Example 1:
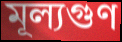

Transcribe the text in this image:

মূল্যগুণ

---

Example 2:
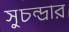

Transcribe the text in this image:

সুচন্দ্রার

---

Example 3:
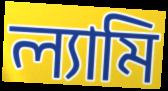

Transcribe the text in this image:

ল্যামি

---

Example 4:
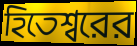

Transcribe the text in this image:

হিতেশ্বরের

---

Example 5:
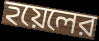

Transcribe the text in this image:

হয়েলের